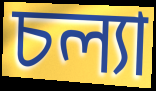
চল্যা